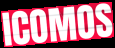
ICOMOS